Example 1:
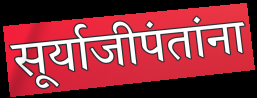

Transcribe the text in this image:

सूर्याजीपंतांना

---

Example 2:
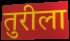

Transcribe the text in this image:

तुरीला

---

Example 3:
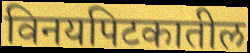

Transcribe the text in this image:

विनयपिटकातील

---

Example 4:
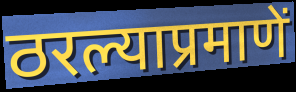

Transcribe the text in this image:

ठरल्याप्रमाणें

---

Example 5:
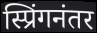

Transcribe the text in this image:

स्प्रिंगनंतर